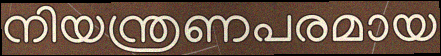
നിയന്ത്രണപരമായ